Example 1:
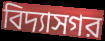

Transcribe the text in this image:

বিদ্যাসগর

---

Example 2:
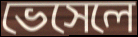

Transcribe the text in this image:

ভেসেলে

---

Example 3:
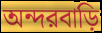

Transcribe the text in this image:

অন্দরবাড়ি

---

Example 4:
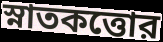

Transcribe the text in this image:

স্নাতকত্তোর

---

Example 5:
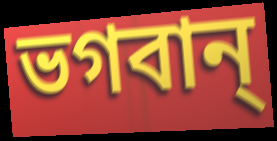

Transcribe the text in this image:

ভগবান্